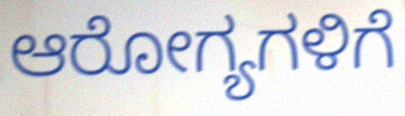
ಆರೋಗ್ಯಗಳಿಗೆ